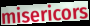
misericors